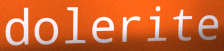
dolerite